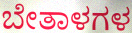
ಬೇತಾಳಗಳ